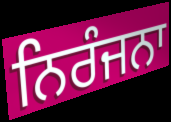
ਨਿਰੰਜਨਾ